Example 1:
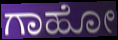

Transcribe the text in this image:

ಗಾಹೋ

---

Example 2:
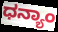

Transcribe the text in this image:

ಧನ್ಯಾಂ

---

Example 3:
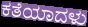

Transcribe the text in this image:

ಕತೆಯಾದಳು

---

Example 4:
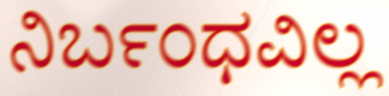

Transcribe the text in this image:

ನಿರ್ಬಂಧವಿಲ್ಲ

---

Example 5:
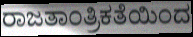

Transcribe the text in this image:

ರಾಜತಾಂತ್ರಿಕತೆಯಿಂದ